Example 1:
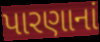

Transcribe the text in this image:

પારણાનાં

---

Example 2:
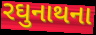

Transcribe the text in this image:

રઘુનાથના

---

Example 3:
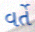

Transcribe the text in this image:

વર્તે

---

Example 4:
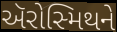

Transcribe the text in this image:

ઍરોસ્મિથને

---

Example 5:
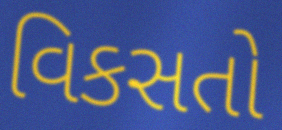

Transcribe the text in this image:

વિકસતો